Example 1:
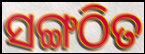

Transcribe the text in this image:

ସଙ୍ଗଠିତ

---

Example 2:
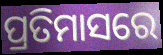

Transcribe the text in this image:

ପ୍ରତିମାସରେ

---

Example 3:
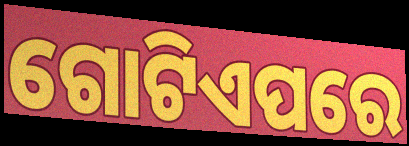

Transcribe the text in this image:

ଗୋଟିଏପରେ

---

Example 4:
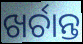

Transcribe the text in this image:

ଖର୍ଚାନ୍ତ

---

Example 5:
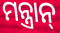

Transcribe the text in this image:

ମନ୍ତ୍ରାନ୍